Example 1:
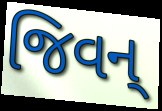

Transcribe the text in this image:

જિવન્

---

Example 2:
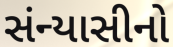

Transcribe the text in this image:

સંન્યાસીનો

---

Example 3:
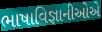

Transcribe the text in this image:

ભાષાવિજ્ઞાનીઓએ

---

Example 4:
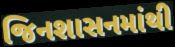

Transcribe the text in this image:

જિનશાસનમાંથી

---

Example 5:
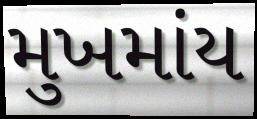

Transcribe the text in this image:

મુખમાંય